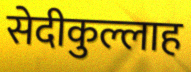
सेदीकुल्लाह